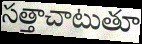
సత్తాచాటుతూ